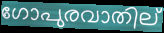
ഗോപുരവാതില്